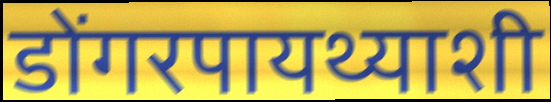
डोंगरपायथ्याशी